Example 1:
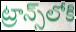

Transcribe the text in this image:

ట్రాన్స్‌లోకి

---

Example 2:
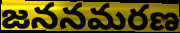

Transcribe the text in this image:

జననమరణ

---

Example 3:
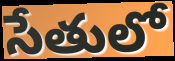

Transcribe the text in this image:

సేతులో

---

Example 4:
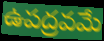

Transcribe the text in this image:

ఉపద్రవమే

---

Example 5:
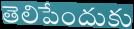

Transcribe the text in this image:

తెలిపేందుకు